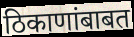
ठिकाणांबाबत